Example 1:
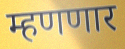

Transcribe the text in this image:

म्हणणार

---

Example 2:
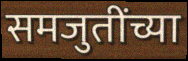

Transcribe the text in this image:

समजुतींच्या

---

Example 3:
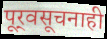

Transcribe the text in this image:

पूर्वसूचनाही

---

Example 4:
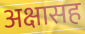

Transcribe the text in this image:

अक्षासह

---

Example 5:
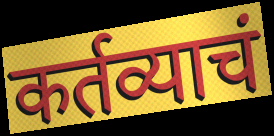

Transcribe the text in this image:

कर्तव्याचं